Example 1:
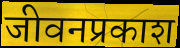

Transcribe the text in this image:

जीवनप्रकाश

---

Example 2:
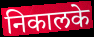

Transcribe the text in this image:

निकालके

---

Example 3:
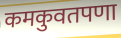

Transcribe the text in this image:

कमकुवतपणा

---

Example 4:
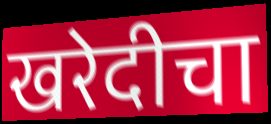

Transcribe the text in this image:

खरेदीचा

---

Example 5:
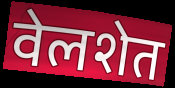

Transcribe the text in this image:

वेलशेत